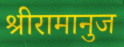
श्रीरामानुज